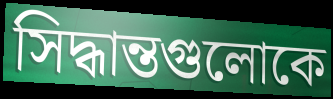
সিদ্ধান্তগুলোকে